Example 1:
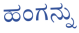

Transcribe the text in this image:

ಹಂಗನ್ನು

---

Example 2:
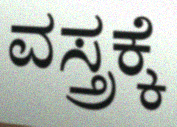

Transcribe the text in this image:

ವಸ್ತ್ರಕ್ಕೆ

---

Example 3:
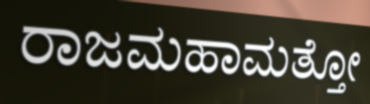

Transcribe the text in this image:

ರಾಜಮಹಾಮತ್ತೋ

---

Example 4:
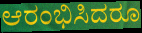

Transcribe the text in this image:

ಆರಂಭಿಸಿದರೂ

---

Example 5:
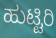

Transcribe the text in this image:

ಹುಟ್ಟಿರಿ